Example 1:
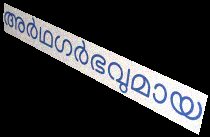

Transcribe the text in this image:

അർഥഗർഭവുമായ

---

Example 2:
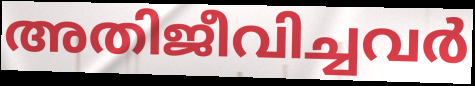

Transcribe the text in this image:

അതിജീവിച്ചവർ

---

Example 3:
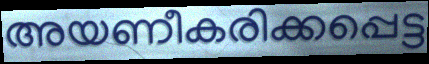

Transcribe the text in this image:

അയണീകരിക്കപ്പെട്ട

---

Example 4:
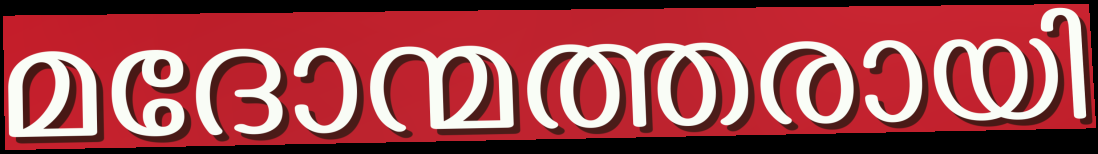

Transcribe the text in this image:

മദോന്മത്തരായി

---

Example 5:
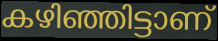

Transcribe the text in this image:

കഴിഞ്ഞിട്ടാണ്